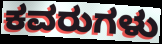
ಕವರುಗಳು